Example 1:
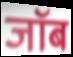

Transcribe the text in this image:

जॉब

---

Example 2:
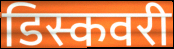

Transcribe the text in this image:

डिस्कवरी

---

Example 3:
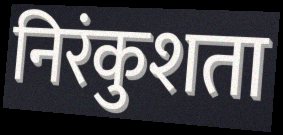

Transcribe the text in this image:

निरंकुशता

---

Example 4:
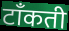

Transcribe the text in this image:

टाँकती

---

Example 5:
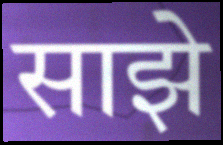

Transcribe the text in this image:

साझे